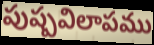
పుష్పవిలాపము